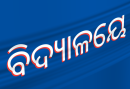
ବିଦ୍ୟାଳୟେ